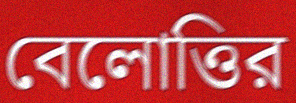
বেলোত্তির